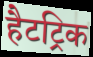
हैटट्रिक